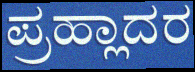
ಪ್ರಹ್ಲಾದರ